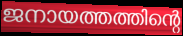
ജനായത്തത്തിന്റെ